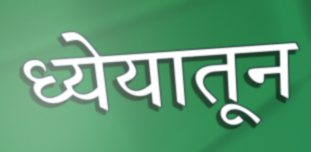
ध्येयातून